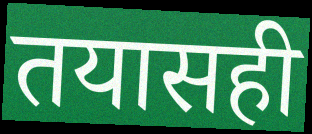
तयासही